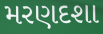
મરણદશા